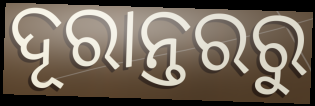
ଦୂରାନ୍ତରରୁ